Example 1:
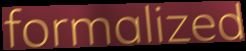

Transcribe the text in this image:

formalized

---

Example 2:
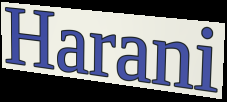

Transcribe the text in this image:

Harani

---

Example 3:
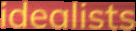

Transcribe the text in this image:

idealists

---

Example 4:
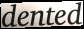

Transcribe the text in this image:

dented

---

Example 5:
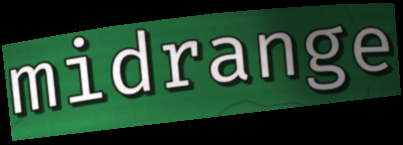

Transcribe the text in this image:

midrange